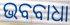
ଭବବାଧା